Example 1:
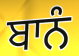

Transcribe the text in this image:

ਬਾਨੰ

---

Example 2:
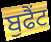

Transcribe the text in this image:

ਬੁਫੈਂਟ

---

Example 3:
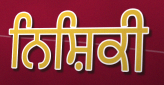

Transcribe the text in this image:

ਨਿਸ਼ਿਕੀ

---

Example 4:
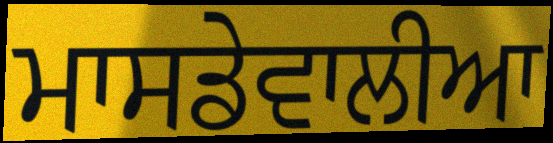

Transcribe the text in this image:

ਮਾਸਡੇਵਾਲੀਆ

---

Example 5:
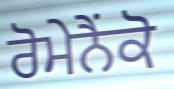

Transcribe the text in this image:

ਰੋਮੇਨੈਂਕੋ